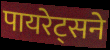
पायरेट्सने